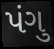
પંગુ